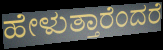
ಹೇಳುತ್ತಾರೆಂದರೆ